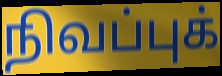
நிவப்புக்